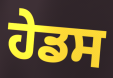
ਹੇਡਸ